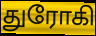
துரோகி